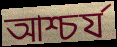
আশ্চর্য